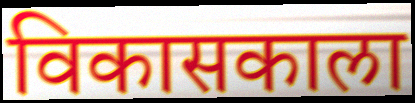
विकासकाला